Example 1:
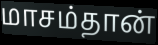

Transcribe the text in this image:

மாசம்தான்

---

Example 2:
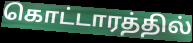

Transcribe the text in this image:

கொட்டாரத்தில்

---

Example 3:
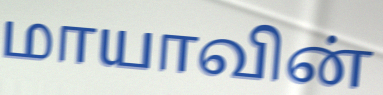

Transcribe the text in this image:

மாயாவின்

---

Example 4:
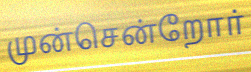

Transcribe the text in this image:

முன்சென்றோர்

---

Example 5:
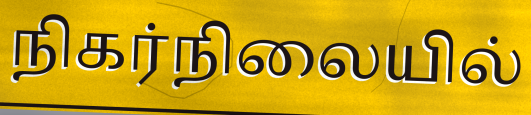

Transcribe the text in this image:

நிகர்நிலையில்